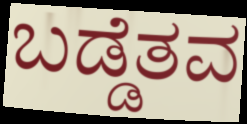
ಬಡ್ಡೆತವ